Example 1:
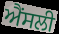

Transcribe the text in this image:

ਐਂਸਲੀ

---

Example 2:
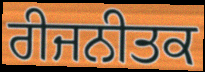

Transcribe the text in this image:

ਰੀਜਨੀਤਕ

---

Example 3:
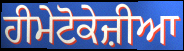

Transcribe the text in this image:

ਹੀਮੇਟੋਕੇਜ਼ੀਆ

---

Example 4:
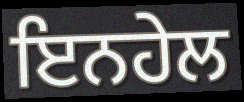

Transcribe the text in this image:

ਇਨਹੇਲ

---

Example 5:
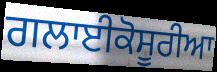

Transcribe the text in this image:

ਗਲਾਈਕੋਸੂਰੀਆ